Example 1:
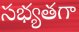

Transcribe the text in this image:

సభ్యతగా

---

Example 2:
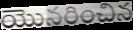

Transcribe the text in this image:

యొనరించిన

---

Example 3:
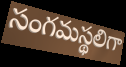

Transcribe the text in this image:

సంగమస్థలిగా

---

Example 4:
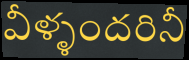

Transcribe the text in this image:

వీళ్ళందరినీ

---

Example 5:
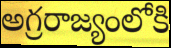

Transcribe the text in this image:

అగ్రరాజ్యంలోకి